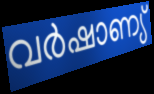
വർഷാണ്യ്